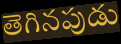
తెగినపుడు